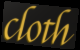
cloth